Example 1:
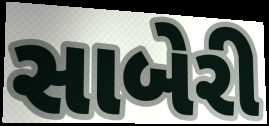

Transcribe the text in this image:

સાબેરી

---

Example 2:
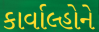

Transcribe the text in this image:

કાર્વાલ્હોને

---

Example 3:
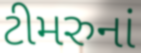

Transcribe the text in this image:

ટીમરુનાં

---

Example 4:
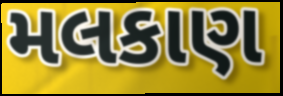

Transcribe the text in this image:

મલકાણ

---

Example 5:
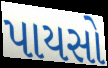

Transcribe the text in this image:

પાયસો